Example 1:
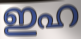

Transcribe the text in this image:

ഇഹ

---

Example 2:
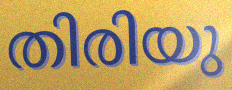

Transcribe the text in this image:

തിരിയു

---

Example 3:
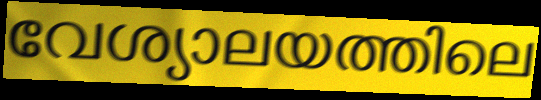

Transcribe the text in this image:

വേശ്യാലയത്തിലെ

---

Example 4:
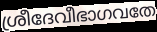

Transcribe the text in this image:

ശ്രീദേവീഭാഗവതേ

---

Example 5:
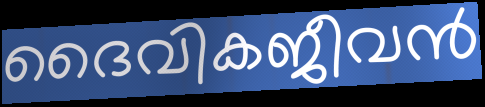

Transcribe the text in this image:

ദൈവികജീവൻ